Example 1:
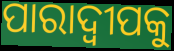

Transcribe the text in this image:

ପାରାଦ୍ୱୀପକୁ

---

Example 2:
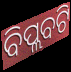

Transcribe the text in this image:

ବିପ୍ଲବଟି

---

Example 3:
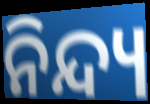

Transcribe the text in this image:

ନିନ୍ଦ୍ୟ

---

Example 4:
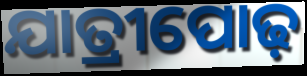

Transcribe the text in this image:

ଯାତ୍ରୀପୋଢ଼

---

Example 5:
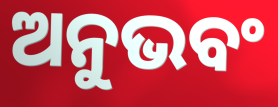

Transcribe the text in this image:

ଅନୁଭବଂ